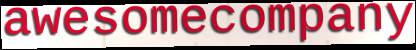
awesomecompany